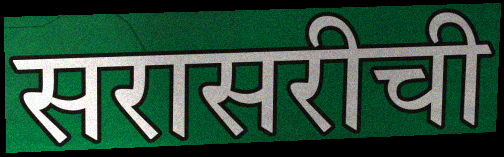
सरासरीची